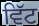
ਵਿੱਟ